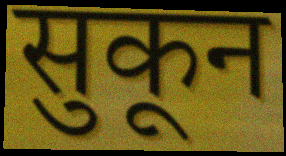
सुकून